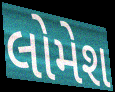
લોમેશ